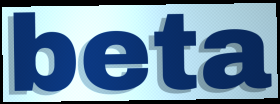
beta